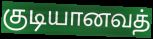
குடியானவத்